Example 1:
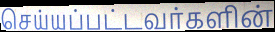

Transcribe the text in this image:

செய்யப்பட்டவர்களின்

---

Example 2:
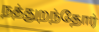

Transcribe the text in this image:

நத்துறந்தோர்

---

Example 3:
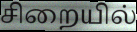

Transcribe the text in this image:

சிறையில்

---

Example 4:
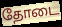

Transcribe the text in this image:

தோடை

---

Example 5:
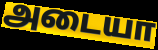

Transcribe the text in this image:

அடையா